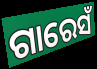
ଗାରେସଁ